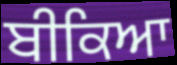
ਬੀਕਿਆ